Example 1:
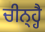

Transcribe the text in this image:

ਚੀਨ੍ਹ੍ਹੈ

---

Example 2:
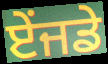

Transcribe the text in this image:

ਏਂਜਡੇ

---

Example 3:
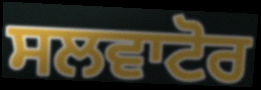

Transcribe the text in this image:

ਸਲਵਾਟੋਰ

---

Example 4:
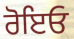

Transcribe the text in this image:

ਰੋਇਓ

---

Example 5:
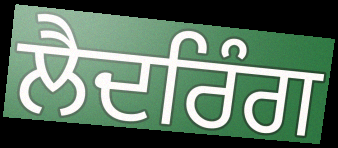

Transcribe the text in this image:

ਲੈਦਰਿੰਗ